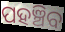
ପହଞ୍ଚିବ